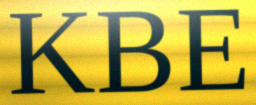
KBE